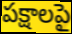
పక్షాలపై